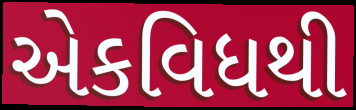
એકવિધથી